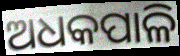
ଅଧକପାଳି